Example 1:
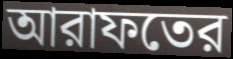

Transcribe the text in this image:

আরাফতের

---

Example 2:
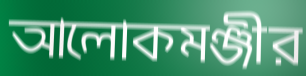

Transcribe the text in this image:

আলোকমঞ্জীর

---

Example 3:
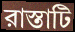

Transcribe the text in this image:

রাস্তাটি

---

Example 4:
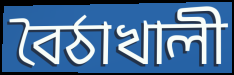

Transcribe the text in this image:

বৈঠাখালী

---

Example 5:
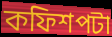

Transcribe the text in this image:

কফিশপটা